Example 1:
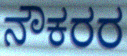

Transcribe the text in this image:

ನೌಕರರ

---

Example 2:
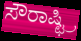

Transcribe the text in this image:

ಸೌರಾಷ್ಟ್ರಿ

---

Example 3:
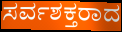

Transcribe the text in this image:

ಸರ್ವಶಕ್ತರಾದ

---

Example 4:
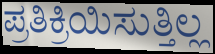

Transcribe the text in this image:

ಪ್ರತಿಕ್ರಿಯಿಸುತ್ತಿಲ್ಲ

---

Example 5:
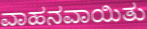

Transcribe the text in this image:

ವಾಹನವಾಯಿತು